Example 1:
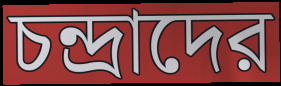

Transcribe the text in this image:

চন্দ্রাদের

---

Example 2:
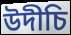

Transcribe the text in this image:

উদীচি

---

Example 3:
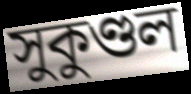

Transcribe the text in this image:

সুকুণ্ডল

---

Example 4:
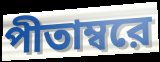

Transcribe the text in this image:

পীতাম্বরে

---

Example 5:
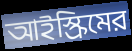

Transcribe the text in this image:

আইস্ক্রিমের